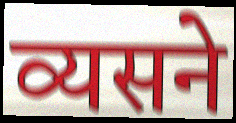
व्यसने